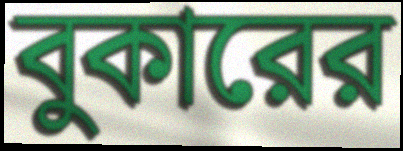
বুকারের